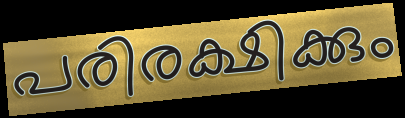
പരിരക്ഷിക്കും